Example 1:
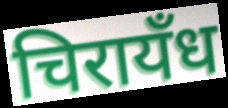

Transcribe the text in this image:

चिरायँध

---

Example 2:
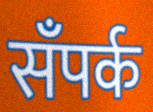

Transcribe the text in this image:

सँपर्क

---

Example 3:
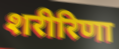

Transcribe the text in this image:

शरीरिणा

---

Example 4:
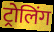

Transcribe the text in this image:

ट्रोलिंग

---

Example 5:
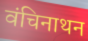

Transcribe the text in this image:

वंचिनाथन